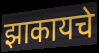
झाकायचे